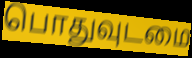
பொதுவுடமை